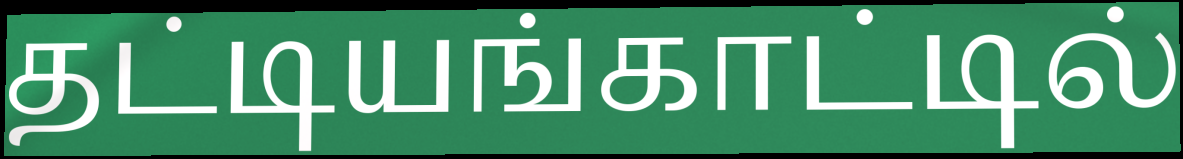
தட்டியங்காட்டில்